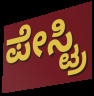
ಪೇಸ್ಟ್ರಿ